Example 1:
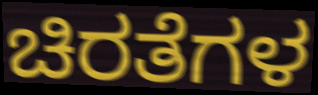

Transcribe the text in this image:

ಚಿರತೆಗಳ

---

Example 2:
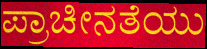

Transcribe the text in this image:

ಪ್ರಾಚೀನತೆಯು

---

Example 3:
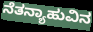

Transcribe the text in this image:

ನೆತನ್ಯಾಹುವಿನ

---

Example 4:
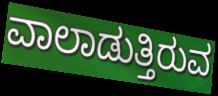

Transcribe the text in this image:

ವಾಲಾಡುತ್ತಿರುವ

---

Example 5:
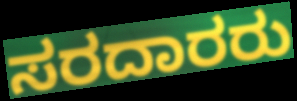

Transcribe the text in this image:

ಸರದಾರರು